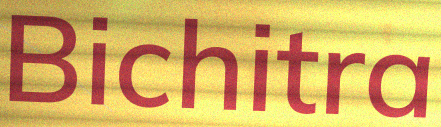
Bichitra